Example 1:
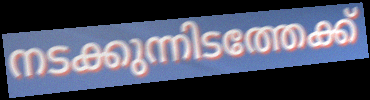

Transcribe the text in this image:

നടക്കുന്നിടത്തേക്ക്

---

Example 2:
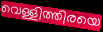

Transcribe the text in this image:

വെള്ളിത്തിരയെ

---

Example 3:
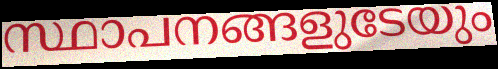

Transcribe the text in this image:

സ്ഥാപനങ്ങളുടേയും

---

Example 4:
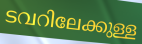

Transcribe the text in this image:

ടവറിലേക്കുള്ള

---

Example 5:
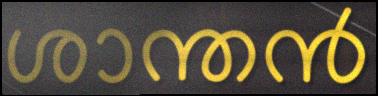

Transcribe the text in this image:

ശാന്തൻ